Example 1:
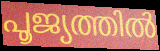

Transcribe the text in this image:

പൂജ്യത്തിൽ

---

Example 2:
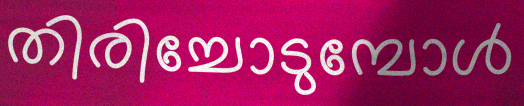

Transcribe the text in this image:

തിരിച്ചോടുമ്പോൾ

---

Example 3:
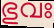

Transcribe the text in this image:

ഭുവഃ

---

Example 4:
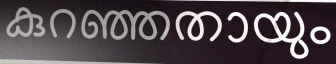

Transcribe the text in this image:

കുറഞ്ഞതായും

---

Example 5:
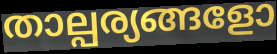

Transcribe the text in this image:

താല്പര്യങ്ങളോ